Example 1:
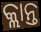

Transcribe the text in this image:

କ୍ଲାନ୍ତ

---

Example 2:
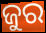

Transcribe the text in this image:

ଜୁର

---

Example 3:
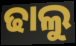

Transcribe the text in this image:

ଢାଲୁ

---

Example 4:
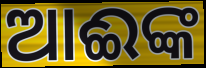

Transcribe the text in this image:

ଆଈଙ୍କ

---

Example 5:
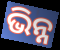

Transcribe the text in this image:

ଭିନ୍ନ